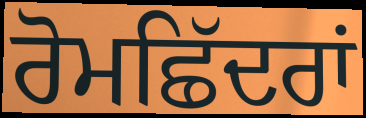
ਰੋਮਛਿੱਦਰਾਂ